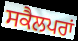
ਸਕੈਲਪਰਾਂ